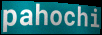
pahochi